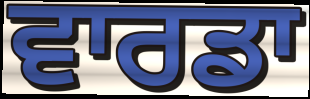
ਵਾਰਡਾ